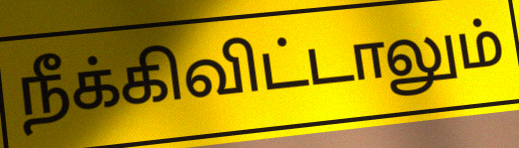
நீக்கிவிட்டாலும்